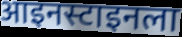
आइनस्टाइनला